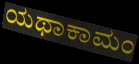
ಯಥಾಕಾಮಂ